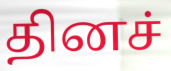
தினச்